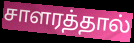
சாளரத்தால்